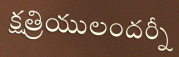
క్షత్రియులందర్నీ